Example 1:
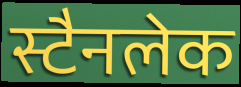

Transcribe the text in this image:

स्टैनलेक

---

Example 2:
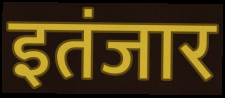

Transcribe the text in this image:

इतंजार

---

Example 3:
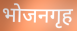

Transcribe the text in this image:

भोजनगृह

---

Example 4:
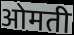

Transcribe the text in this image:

ओमती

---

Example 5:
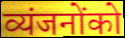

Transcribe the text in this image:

व्यंजनोंको